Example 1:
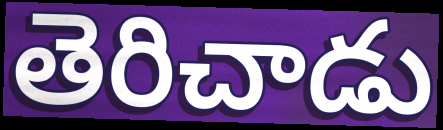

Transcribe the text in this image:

తెరిచాడు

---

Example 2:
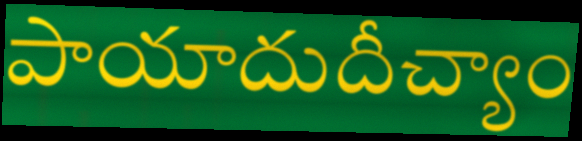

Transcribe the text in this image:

పాయాదుదీచ్యాం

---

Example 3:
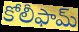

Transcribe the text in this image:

కోలీఫామ్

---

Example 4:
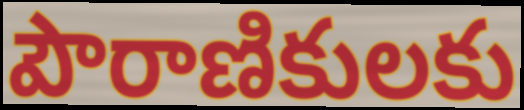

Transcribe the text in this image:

పౌరాణికులకు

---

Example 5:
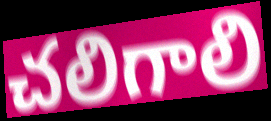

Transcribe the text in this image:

చలిగాలి